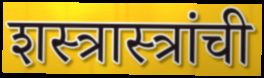
शस्त्रास्त्रांची